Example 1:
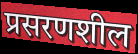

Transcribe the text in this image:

प्रसरणशील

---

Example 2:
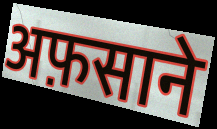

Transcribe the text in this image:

अफ़साने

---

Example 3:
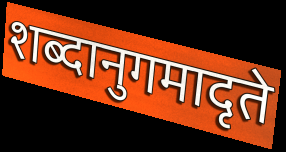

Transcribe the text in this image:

शब्दानुगमादृते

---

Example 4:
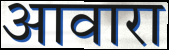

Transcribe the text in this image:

आवारा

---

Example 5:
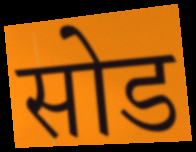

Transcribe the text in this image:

सोड